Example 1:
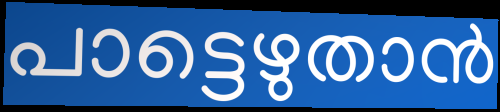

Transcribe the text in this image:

പാട്ടെഴുതാൻ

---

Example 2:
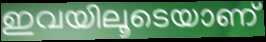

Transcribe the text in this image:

ഇവയിലൂടെയാണ്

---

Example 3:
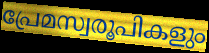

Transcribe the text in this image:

പ്രേമസ്വരൂപികളും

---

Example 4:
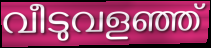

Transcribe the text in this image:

വീടുവളഞ്ഞ്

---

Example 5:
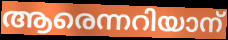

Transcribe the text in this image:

ആരെന്നറിയാന്